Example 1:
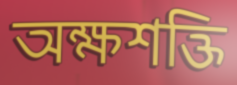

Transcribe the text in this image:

অক্ষশক্তি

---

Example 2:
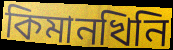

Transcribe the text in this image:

কিমানখিনি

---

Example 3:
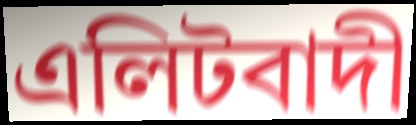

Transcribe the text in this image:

এলিটবাদী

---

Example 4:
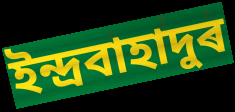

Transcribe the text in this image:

ইন্দ্ৰবাহাদুৰ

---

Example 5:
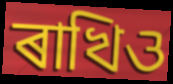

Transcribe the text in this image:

ৰাখিও